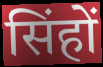
सिंहों